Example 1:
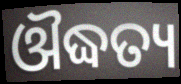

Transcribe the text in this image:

ଔଦ୍ଧତ୍ୟ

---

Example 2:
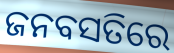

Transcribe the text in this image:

ଜନବସତିରେ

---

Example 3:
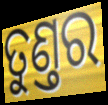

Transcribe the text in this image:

ତୁଣ୍ତର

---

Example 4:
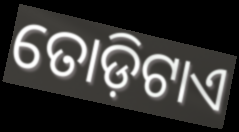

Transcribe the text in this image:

ତୋଡ଼ିଟାଏ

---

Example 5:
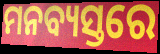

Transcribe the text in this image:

ମନବ୍ୟସ୍ତରେ